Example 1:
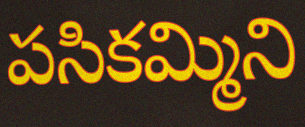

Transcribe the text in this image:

పసికమ్మిని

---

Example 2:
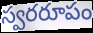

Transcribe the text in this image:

స్వరరూపం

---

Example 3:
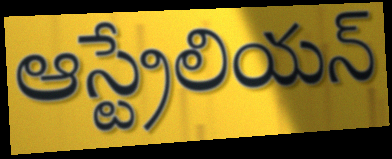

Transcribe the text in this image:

ఆస్ట్రేలియన్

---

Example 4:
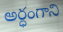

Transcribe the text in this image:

అర్ధంగాని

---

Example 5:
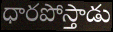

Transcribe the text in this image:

ధారపోస్తాడు